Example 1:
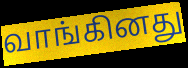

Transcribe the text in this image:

வாங்கினது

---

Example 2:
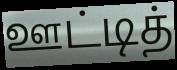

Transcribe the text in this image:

ஊட்டித்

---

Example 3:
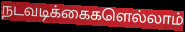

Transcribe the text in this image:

நடவடிக்கைகளெல்லாம்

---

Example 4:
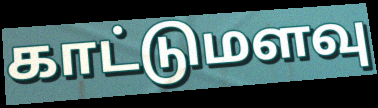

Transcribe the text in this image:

காட்டுமளவு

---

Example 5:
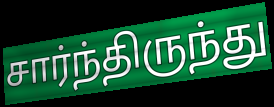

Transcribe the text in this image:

சார்ந்திருந்து